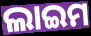
ଲାଇମ